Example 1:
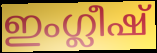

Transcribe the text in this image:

ഇംഗ്ലീഷ്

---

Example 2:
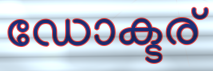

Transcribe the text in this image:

ഡോക്ടര്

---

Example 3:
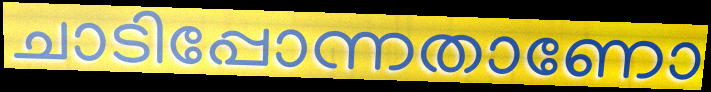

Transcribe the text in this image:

ചാടിപ്പോന്നതാണോ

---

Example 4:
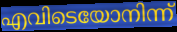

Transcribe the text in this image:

എവിടെയോനിന്ന്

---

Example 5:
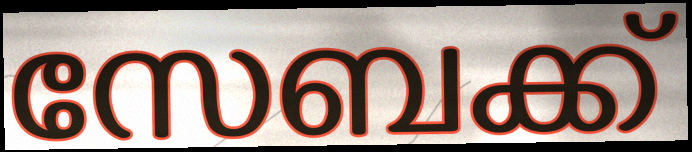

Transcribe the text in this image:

സേബക്ക്